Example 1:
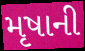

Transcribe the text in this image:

મૃષાની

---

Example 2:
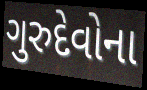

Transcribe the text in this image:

ગુરુદેવોના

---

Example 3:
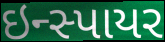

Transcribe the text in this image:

ઇન્સ્પાયર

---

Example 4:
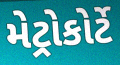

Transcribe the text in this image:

મેટ્રોકોર્ટે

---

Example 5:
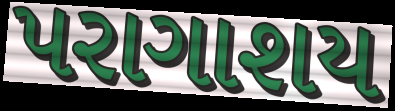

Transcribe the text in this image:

પરાગાશય